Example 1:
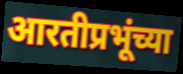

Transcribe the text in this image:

आरतीप्रभूंच्या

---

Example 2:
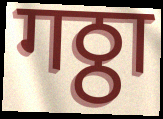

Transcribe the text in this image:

गठ्ठा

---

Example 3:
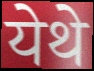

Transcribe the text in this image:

येथे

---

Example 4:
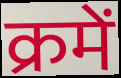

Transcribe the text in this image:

क्रमें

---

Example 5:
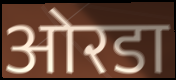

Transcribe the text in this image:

ओरडा